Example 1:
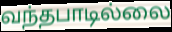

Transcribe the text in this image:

வந்தபாடில்லை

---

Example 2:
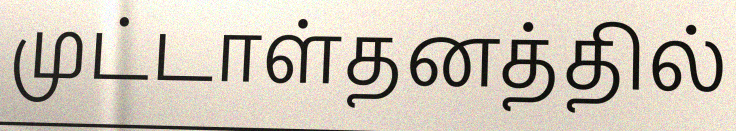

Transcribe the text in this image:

முட்டாள்தனத்தில்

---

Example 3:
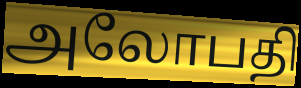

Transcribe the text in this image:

அலோபதி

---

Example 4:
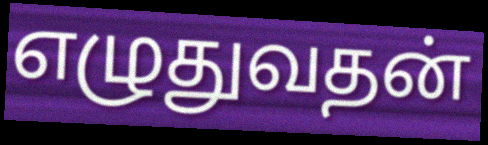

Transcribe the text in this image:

எழுதுவதன்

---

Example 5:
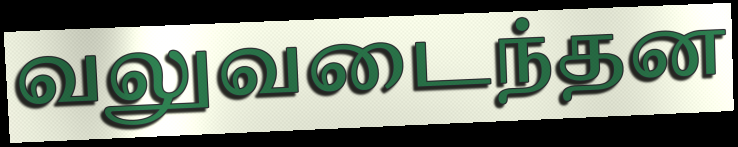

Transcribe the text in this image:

வலுவடைந்தன